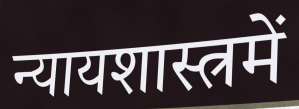
न्यायशास्त्रमें